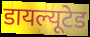
डायल्यूटेड